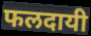
फलदायी